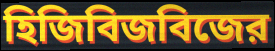
হিজিবিজবিজের